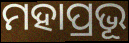
ମହାପ୍ରଭୂ